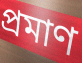
প্রমাণ